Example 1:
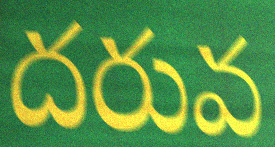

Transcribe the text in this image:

దరువ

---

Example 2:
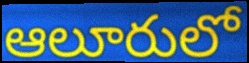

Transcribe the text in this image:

ఆలూరులో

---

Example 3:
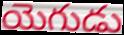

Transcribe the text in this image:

యెగుడు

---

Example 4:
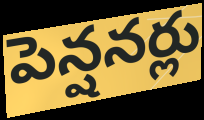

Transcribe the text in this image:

పెన్షనర్లు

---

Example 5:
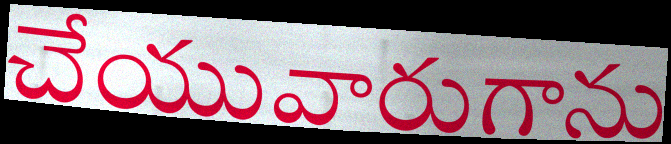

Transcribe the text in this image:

చేయువారుగాను